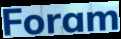
Foram